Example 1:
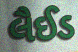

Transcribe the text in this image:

લૈઈડ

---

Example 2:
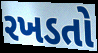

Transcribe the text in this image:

રખડતો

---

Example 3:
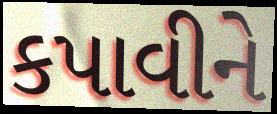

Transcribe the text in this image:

કપાવીને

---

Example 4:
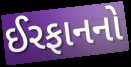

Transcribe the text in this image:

ઈરફાનનો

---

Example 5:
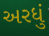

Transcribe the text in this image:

અરધું